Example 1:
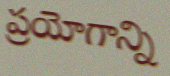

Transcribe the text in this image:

ప్రయోగాన్ని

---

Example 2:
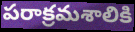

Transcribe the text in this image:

పరాక్రమశాలికి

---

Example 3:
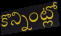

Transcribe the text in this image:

కొన్నింట్లో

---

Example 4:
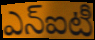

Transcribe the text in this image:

ఎన్ఐటీ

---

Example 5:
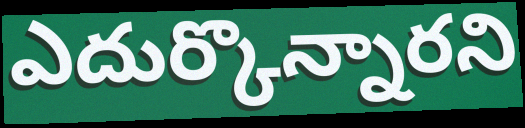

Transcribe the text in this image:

ఎదుర్కొన్నారని